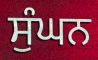
ਸੁੰਘਨ